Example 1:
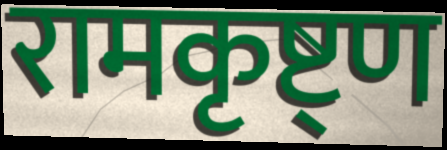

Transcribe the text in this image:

रामकृष्ट्ण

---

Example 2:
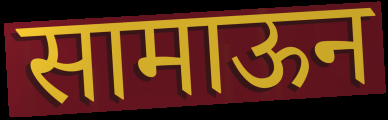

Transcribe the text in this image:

सामाऊन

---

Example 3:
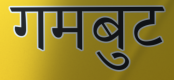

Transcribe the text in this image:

गमबुट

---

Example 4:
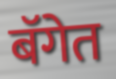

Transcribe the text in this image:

बॅगेत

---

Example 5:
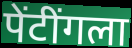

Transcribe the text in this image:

पेंटींगला